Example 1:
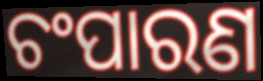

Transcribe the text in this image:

ଚଂପାରଣ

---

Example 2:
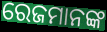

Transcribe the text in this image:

ରେଜମାନଙ୍କ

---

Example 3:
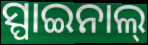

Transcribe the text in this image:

ସ୍ପାଇନାଲ୍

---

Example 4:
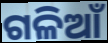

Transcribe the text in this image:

ଗଳିଆଁ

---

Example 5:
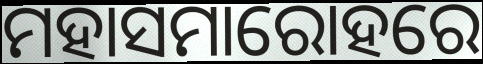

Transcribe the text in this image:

ମହାସମାରୋହରେ